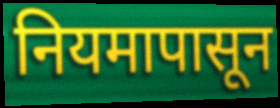
नियमापासून